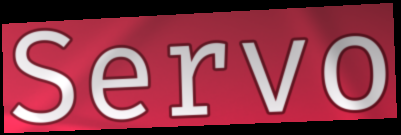
Servo